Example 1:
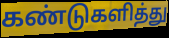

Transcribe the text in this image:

கண்டுகளித்து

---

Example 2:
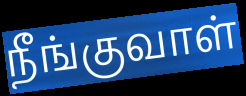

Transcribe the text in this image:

நீங்குவாள்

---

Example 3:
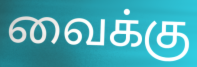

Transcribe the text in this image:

வைக்கு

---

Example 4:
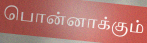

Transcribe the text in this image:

பொன்னாக்கும்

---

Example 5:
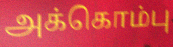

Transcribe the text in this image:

அக்கொம்பு